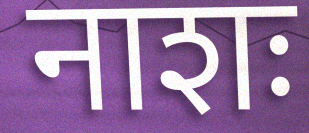
नाशः